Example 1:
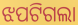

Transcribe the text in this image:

ଝପଟିଗଲା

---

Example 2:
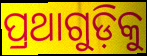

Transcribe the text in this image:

ପ୍ରଥାଗୁଡ଼ିକୁ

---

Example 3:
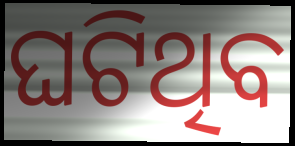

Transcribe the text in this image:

ଘଟିଥିବ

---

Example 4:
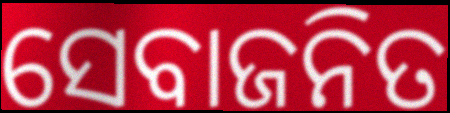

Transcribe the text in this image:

ସେବାଜନିତ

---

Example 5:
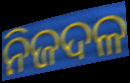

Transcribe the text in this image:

ନିଜଦଳ